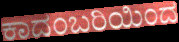
ಕಾದಂಬರಿಯಿಂದ